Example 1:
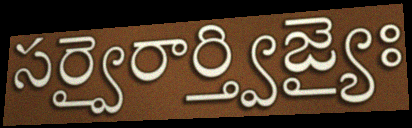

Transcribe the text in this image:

సర్వైరార్త్విజ్యైః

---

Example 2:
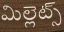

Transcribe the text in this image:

మిల్లెట్స్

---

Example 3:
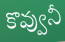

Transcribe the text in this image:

కొవ్వునీ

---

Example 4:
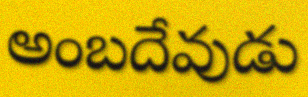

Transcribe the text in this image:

అంబదేవుడు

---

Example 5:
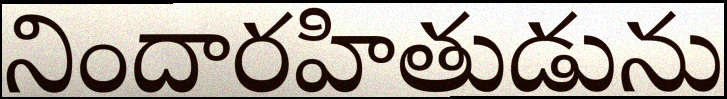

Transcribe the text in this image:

నిందారహితుడును